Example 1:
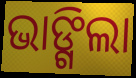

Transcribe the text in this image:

ଭାଙ୍ଗିଲା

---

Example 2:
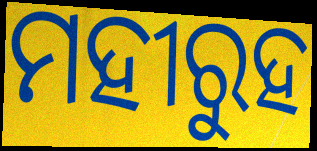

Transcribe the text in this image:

ମହୀରୁହ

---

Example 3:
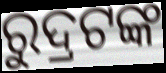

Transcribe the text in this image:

ରୁଦ୍ରଟଙ୍କ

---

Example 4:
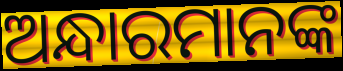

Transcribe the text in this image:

ଅନ୍ଧାରମାନଙ୍କ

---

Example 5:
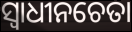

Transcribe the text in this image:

ସ୍ବାଧୀନଚେତା